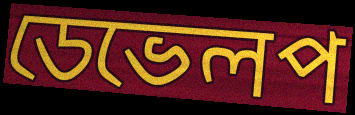
ডেভেলপ